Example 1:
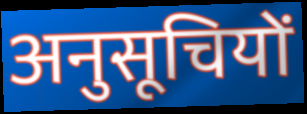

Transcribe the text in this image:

अनुसूचियों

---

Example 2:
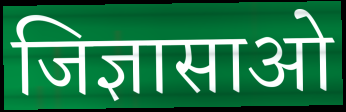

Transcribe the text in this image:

जिज्ञासाओ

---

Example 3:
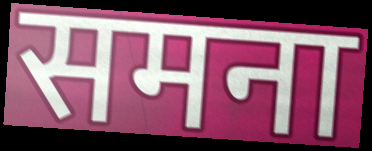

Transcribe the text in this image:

समना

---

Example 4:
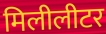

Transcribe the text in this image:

मिलीलीटर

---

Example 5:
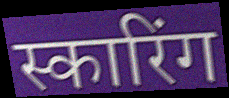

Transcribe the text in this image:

स्कारिंग